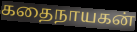
கதைநாயகன்